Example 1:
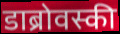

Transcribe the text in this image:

डाब्रोवस्की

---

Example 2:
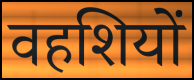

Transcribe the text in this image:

वहशियों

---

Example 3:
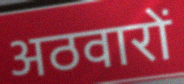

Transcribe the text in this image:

अठवारों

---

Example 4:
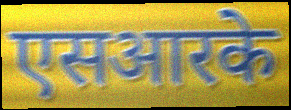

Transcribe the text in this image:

एसआरके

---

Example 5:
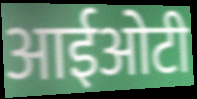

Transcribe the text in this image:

आईओटी